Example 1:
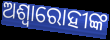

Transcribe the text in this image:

ଅଶ୍ୱାରୋହୀଙ୍କ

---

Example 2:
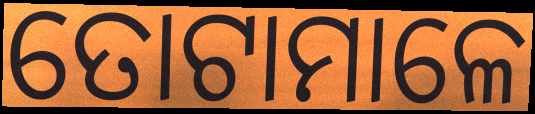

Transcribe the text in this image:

ତୋଟାମାଳେ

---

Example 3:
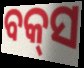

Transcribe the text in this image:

ବକ୍‌ସ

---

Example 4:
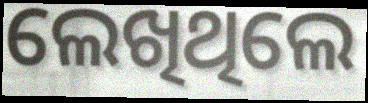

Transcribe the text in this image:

ଲେଖିଥିଲେ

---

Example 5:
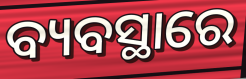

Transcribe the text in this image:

ବ୍ୟବସ୍ଥାରେ